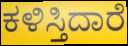
ಕಳಿಸ್ತಿದಾರೆ